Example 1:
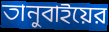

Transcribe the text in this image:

তানুবাইয়ের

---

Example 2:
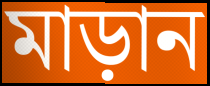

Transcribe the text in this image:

মাড়ান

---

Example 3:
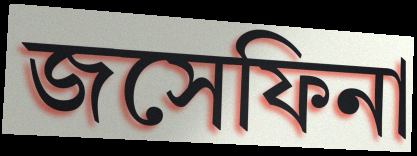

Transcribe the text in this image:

জসেফিনা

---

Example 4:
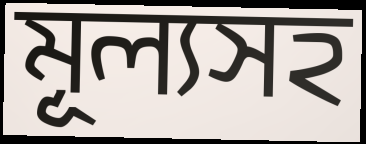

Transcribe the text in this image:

মূল্যসহ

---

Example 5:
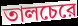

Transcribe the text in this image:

তালচেরে